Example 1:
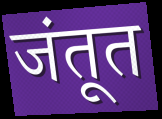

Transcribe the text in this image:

जंतूत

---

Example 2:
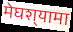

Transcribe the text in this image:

मेघश्यामा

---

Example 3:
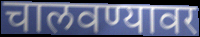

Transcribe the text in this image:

चालवण्यावर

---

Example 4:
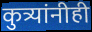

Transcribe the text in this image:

कुत्र्यांनीही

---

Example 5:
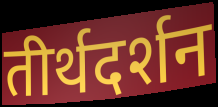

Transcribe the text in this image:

तीर्थदर्शन